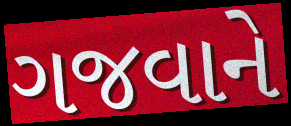
ગજવાને